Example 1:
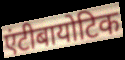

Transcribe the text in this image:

एंटीबायोटिक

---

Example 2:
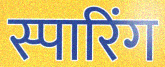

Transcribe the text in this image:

स्पारिंग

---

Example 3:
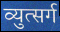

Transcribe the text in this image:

व्युत्सर्ग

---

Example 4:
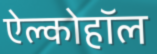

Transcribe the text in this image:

ऐल्कोहॉल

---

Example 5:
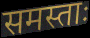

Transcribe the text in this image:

समस्ताः